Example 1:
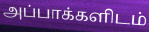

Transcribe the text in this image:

அப்பாக்களிடம்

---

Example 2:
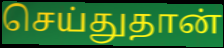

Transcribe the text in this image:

செய்துதான்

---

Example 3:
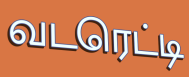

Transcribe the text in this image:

வடரெட்டி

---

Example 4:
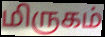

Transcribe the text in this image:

மிருகம்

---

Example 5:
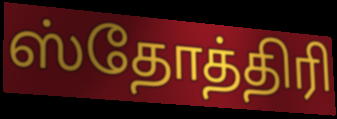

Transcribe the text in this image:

ஸ்தோத்திரி